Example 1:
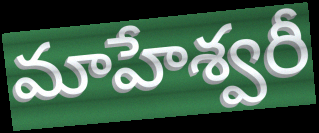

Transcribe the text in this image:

మాహేశ్వరీ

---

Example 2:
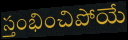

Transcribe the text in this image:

స్తంభించిపోయే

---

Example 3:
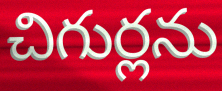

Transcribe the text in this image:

చిగుర్లను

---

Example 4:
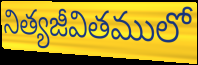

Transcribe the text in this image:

నిత్యజీవితములో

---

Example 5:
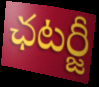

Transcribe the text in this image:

ఛటర్జీ